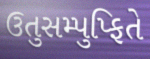
ઉતુસમ્પુપ્ફિતે